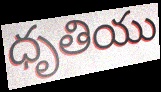
ధృతియు